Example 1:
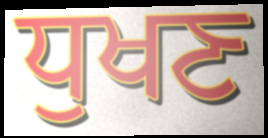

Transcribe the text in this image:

ਧੁਖਣ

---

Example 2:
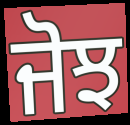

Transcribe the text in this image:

ਜੋਝ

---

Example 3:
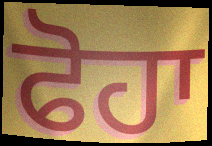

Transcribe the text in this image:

ਫੋਹਾ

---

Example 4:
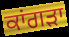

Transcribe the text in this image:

ਕਾਂਗੜਾ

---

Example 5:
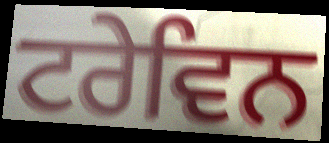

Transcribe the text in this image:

ਟਰੇਵਿਨ